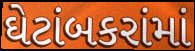
ઘેટાંબકરાંમાં